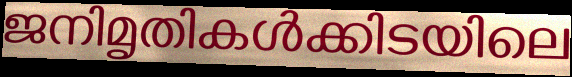
ജനിമൃതികൾക്കിടയിലെ